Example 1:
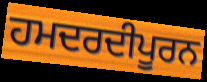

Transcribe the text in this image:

ਹਮਦਰਦੀਪੂਰਨ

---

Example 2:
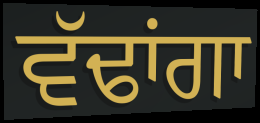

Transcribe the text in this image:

ਵੱਢਾਂਗਾ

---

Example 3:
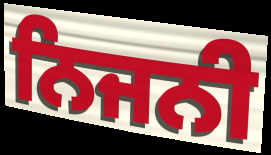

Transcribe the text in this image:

ਨਿਜਨੀ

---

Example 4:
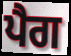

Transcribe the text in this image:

ਪੈਗ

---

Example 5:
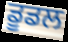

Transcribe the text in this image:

ਡੂਡਲ